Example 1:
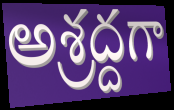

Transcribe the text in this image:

అశ్రద్దగా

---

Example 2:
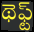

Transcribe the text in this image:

థెఫ్ట్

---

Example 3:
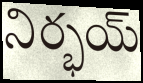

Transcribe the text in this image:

నిర్భయ్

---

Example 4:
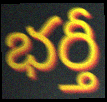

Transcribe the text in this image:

భర్తీ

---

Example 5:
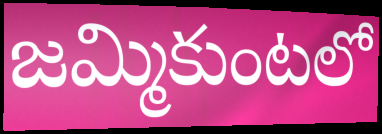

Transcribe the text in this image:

జమ్మికుంటలో